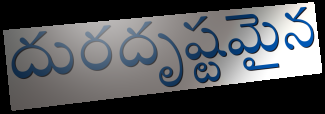
దురదృష్టమైన